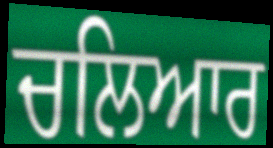
ਚਲਿਆਰ